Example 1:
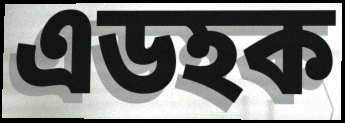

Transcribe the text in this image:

এডহক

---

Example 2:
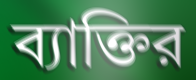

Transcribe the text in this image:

ব্যাক্তির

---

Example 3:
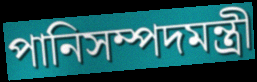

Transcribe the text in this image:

পানিসম্পদমন্ত্রী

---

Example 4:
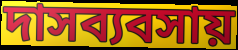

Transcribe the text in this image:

দাসব্যবসায়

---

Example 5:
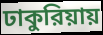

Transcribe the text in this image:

ঢাকুরিয়ায়